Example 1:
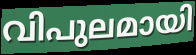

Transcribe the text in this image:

വിപുലമായി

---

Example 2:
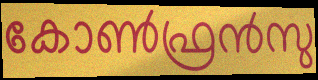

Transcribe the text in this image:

കോൺഫ്രൻസു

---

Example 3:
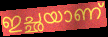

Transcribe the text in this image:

ഇച്ഛയാണ്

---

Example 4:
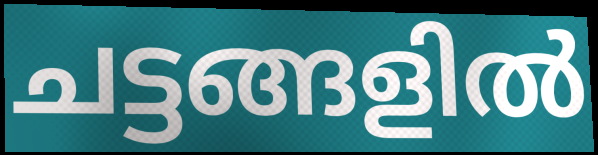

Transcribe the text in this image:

ചട്ടങ്ങളിൽ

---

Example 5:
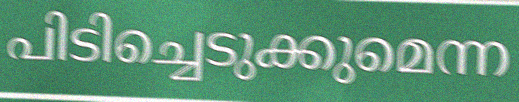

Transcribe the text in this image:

പിടിച്ചെടുക്കുമെന്ന